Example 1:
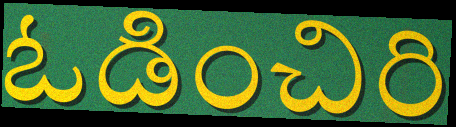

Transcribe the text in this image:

ఓడించిరి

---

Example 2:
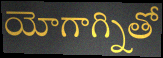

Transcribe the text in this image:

యోగాగ్నితో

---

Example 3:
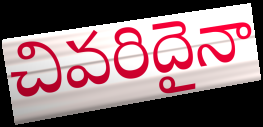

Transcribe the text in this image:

చివరిదైనా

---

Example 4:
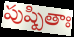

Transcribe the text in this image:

పుష్పితాః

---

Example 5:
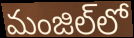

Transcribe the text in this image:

మంజిల్‌లో